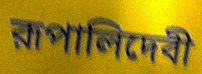
রূপালিদেবী